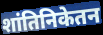
शांतिनिकेतन